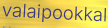
valaipookkal